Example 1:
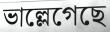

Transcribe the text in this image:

ভাল্লেগেছে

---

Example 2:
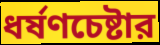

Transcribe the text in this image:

ধর্ষণচেষ্টার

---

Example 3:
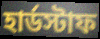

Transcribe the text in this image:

হার্ডস্টাফ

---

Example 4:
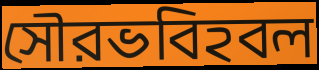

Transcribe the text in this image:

সৌরভবিহবল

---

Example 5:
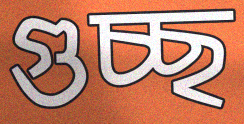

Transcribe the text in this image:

গুচ্ছ